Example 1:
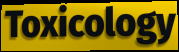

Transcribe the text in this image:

Toxicology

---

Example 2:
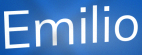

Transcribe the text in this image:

Emilio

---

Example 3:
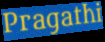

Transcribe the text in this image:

Pragathi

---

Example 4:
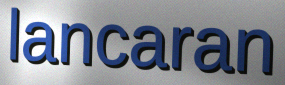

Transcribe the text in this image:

lancaran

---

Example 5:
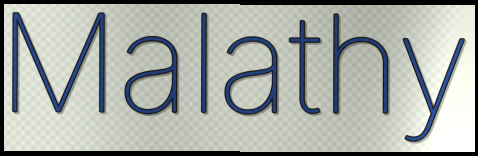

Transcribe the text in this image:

Malathy